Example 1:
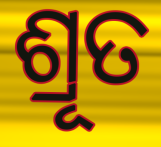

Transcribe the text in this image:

ଶ୍ରୂତ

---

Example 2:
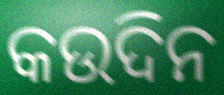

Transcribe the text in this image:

କଉଦିନ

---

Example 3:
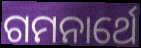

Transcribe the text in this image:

ଗମନାର୍ଥେ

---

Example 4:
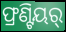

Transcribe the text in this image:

ଫ୍ରଣ୍ଟିୟର୍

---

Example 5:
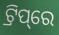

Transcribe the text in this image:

ଟ୍ରିପ୍‌ରେ